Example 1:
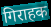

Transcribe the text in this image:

गिराहक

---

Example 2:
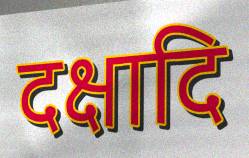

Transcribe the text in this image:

दक्षादि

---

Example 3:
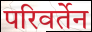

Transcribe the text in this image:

परिवर्तेन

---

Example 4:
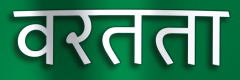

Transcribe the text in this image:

वरतता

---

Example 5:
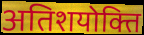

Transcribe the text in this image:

अतिशयोक्ति